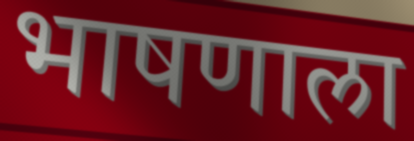
भाषणाला